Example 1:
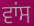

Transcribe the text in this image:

ਵਾਂਸ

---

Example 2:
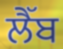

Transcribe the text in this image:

ਲੈੱਬ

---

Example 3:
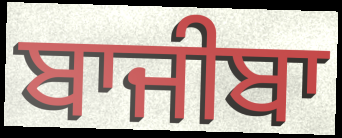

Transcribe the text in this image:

ਬਾਜੀਬਾ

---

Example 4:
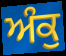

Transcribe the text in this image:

ਅੰਕੁ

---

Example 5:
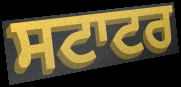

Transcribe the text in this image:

ਸਟਾਟਰ